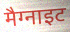
मैग्नाइट